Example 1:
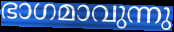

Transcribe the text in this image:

ഭാഗമാവുന്നു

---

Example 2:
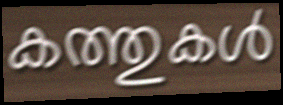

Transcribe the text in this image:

കത്തുകൾ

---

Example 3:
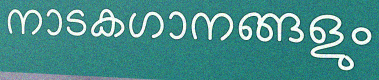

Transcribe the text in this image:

നാടകഗാനങ്ങളും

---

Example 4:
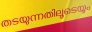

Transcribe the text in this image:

തടയുന്നതിലൂടെയും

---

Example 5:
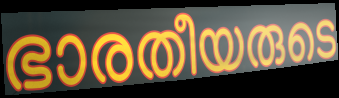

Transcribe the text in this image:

ഭാരതീയരുടെ